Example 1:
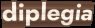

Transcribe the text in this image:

diplegia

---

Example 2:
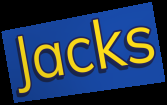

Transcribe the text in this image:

Jacks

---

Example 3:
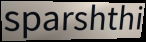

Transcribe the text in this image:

sparshthi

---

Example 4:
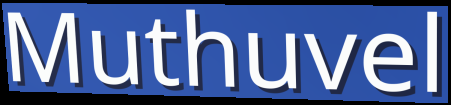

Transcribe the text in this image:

Muthuvel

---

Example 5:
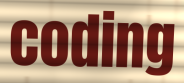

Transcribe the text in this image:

coding